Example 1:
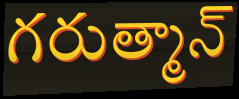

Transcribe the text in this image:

గరుత్మాన్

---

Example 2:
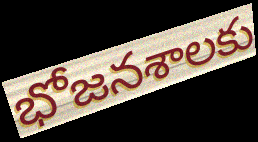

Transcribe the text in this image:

భోజనశాలకు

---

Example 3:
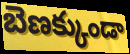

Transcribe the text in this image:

బెణక్కుండా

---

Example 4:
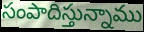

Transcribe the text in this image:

సంపాదిస్తున్నాము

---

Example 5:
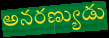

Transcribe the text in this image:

అనరణ్యుడు